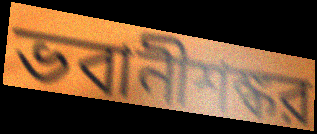
ভবানীশঙ্কর